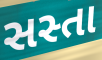
સસ્તા